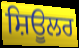
ਸ਼ਿਊਲਰ